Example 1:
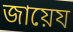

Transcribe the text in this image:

জায়েয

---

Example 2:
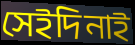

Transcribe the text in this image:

সেইদিনাই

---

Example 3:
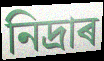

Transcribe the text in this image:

নিদ্ৰাৰ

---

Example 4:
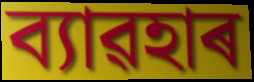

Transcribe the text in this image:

ব্যাৱহাৰ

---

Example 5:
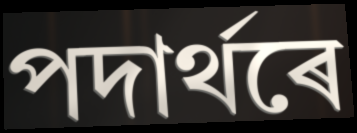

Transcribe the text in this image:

পদাৰ্থৰে